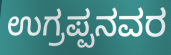
ಉಗ್ರಪ್ಪನವರ